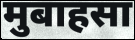
मुबाहसा